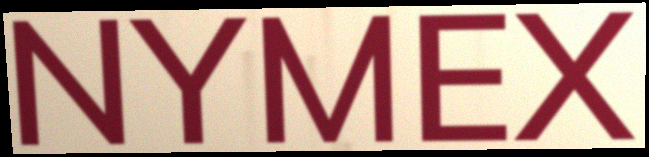
NYMEX